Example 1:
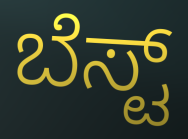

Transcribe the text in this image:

ಬೆಸ್ಟ್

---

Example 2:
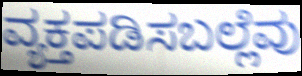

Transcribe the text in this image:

ವ್ಯಕ್ತಪಡಿಸಬಲ್ಲೆವು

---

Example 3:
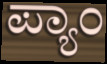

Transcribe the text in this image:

ಪ್ಯಾಂ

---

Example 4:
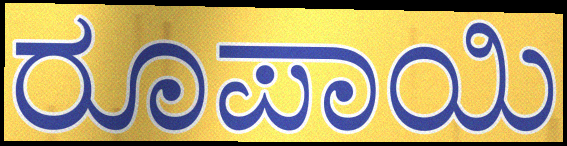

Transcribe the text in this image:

ರೂಪಾಯಿ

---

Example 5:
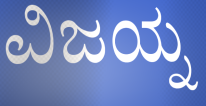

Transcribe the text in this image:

ವಿಜಯ್ನ